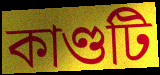
কাণ্ডটি